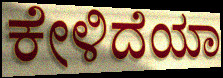
ಕೇಳಿದೆಯಾ